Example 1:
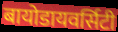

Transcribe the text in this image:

बायोडायवर्सिटी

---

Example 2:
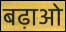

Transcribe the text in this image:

बढ़ाओ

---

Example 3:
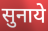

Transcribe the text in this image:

सुनाये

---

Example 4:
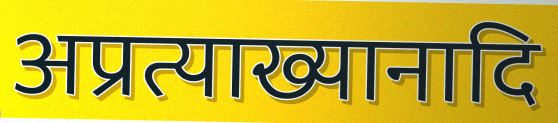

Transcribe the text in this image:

अप्रत्याख्यानादि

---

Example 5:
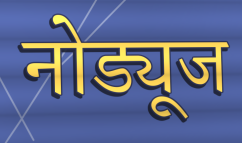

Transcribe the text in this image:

नोड्यूज